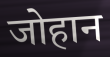
जोहान